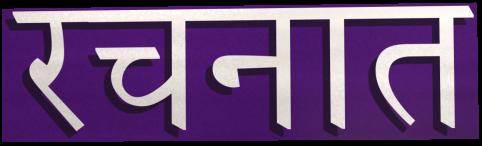
रचनात